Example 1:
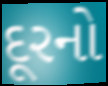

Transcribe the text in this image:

દૂરનો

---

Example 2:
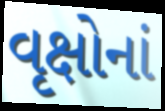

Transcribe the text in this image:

વૃક્ષોનાં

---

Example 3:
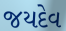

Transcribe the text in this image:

જયદેવ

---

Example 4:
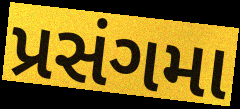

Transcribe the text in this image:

પ્રસંગમા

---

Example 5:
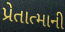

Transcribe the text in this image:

પ્રેતાત્માની